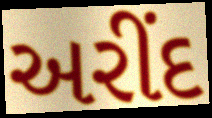
અરીંદ